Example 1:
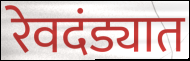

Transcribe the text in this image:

रेवदंड्यात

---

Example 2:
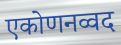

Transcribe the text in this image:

एकोणनव्वद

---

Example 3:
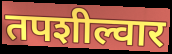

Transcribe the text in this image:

तपशील्वार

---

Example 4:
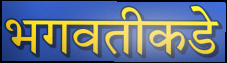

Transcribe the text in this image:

भगवतीकडे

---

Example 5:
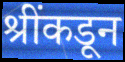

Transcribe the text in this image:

श्रींकडून